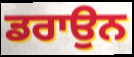
ਡਰਾਉਨ